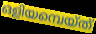
ഒളിയമ്പെയ്ത്